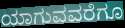
ಯಾಗುವವರೆಗೂ